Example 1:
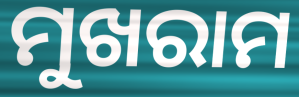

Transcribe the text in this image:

ମୁଖରାମ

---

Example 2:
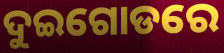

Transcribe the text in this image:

ଦୁଇଗୋଡରେ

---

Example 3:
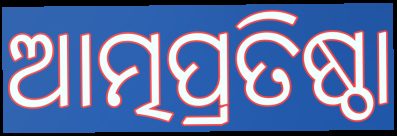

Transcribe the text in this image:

ଆତ୍ମପ୍ରତିଷ୍ଠା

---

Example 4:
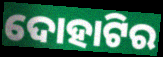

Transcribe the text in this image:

ଦୋହାଟିର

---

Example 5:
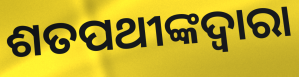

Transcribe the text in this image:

ଶତପଥୀଙ୍କଦ୍ୱାରା